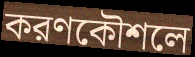
করণকৌশলে